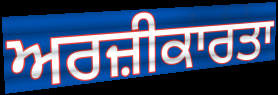
ਅਰਜ਼ੀਕਾਰਤਾ